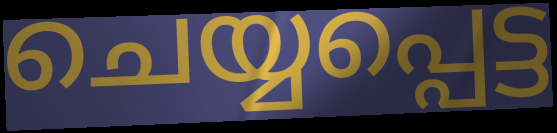
ചെയ്യപ്പെട്ട